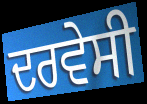
ਦਰਵੇਸੀ